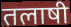
तलाषी